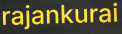
rajankurai